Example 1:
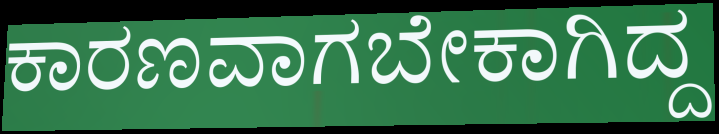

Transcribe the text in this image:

ಕಾರಣವಾಗಬೇಕಾಗಿದ್ದ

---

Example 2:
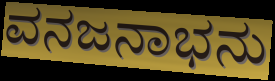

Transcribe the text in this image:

ವನಜನಾಭನು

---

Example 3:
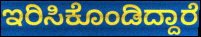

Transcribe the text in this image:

ಇರಿಸಿಕೊಂಡಿದ್ದಾರೆ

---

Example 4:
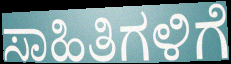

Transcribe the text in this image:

ಸಾಹಿತಿಗಳಿಗೆ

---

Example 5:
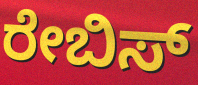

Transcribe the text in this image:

ರೇಬಿಸ್